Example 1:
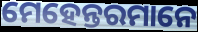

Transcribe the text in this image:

ମେହେନ୍ତରମାନେ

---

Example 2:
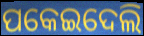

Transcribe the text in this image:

ପକେଇଦେଲି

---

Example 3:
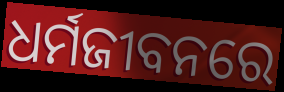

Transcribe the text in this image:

ଧର୍ମଜୀବନରେ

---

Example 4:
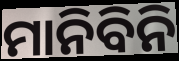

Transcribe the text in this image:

ମାନିବିନି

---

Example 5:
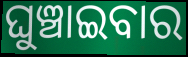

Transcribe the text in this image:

ଘୁଞ୍ଚାଇବାର